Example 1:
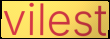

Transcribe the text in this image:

vilest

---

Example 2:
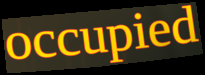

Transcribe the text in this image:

occupied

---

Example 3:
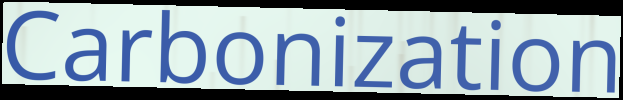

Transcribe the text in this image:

Carbonization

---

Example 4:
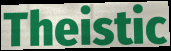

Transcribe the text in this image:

Theistic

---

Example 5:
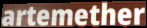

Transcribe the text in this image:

artemether